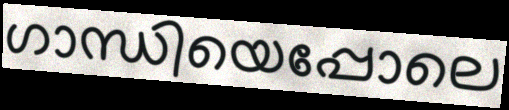
ഗാന്ധിയെപ്പോലെ